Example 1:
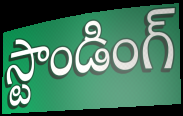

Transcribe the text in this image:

స్టాండింగ్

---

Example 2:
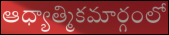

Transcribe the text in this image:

ఆధ్యాత్మికమార్గంలో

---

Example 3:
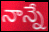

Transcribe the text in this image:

నాన్నే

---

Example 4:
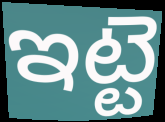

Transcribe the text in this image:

ఇట్టె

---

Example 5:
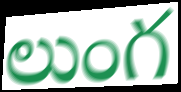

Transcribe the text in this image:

లుంగ